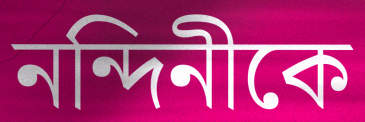
নন্দিনীকে